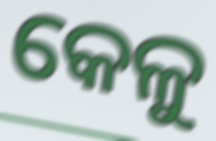
କେଳୁ